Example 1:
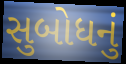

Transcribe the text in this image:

સુબોધનું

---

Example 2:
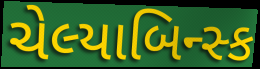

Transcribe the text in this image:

ચેલ્યાબિન્સ્ક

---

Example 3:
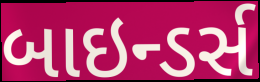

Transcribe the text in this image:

બાઇન્ડર્સ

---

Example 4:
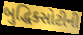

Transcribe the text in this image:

બુદ્ધિકસોટીની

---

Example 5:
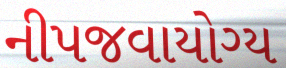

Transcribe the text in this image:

નીપજવાયોગ્ય